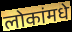
लोकांमधे